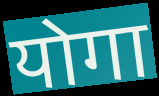
योगा